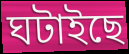
ঘটাইছে